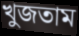
খুজতাম